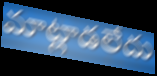
మాట్లాడలేదు